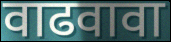
वाढवावा